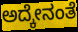
ಅದ್ಕೇನಂತೆ